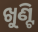
ଖୁଣ୍ଟି